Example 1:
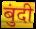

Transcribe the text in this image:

बुंदी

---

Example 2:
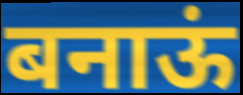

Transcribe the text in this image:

बनाऊं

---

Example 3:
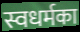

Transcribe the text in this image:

स्वधर्मका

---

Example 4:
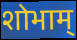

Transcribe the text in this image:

शोभाम्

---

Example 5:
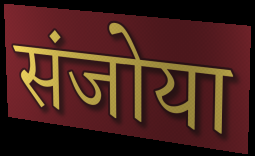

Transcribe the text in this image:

संजोया